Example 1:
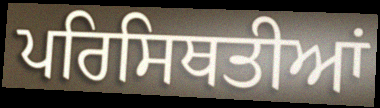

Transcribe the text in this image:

ਪਰਿਸਿਥਤੀਆਂ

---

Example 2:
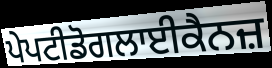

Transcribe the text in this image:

ਪੇਪਟੀਡੋਗਲਾਈਕੈਨਜ਼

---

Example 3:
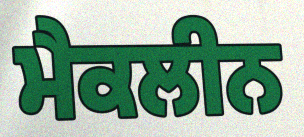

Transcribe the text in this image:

ਮੈਕਲੀਨ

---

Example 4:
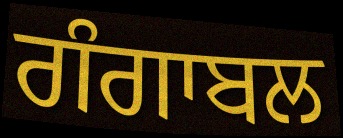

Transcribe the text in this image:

ਗੰਗਾਬਲ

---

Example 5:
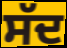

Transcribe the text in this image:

ਸੱਦ